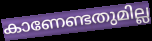
കാണേണ്ടതുമില്ല